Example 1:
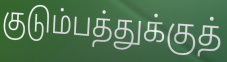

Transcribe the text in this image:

குடும்பத்துக்குத்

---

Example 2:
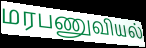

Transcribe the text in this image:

மரபணுவியல்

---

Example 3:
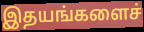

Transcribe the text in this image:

இதயங்களைச்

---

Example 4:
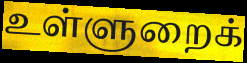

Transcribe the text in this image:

உள்ளுறைக்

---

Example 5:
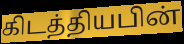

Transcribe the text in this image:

கிடத்தியபின்